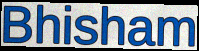
Bhisham